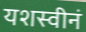
यशस्वीनं